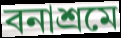
বনাশ্রমে